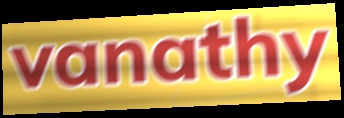
vanathy